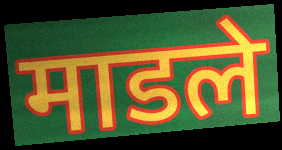
माडले